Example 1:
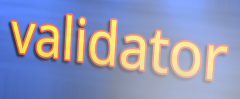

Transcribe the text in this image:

validator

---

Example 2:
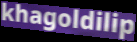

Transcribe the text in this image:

khagoldilip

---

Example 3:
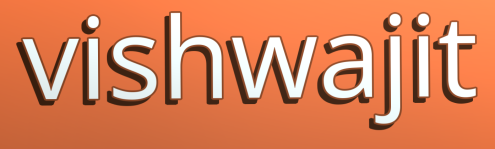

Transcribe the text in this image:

vishwajit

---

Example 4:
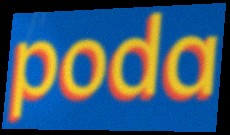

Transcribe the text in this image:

poda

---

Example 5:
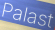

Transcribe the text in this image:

Palast